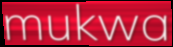
mukwa